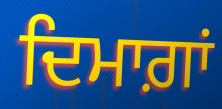
ਦਿਮਾਗ਼ਾਂ